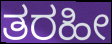
ತರಹೀ